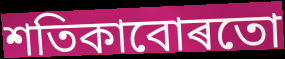
শতিকাবোৰতো